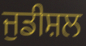
ਜੁਡੀਸ਼ਲ